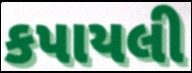
કપાયલી